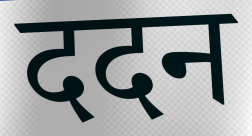
ददन